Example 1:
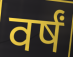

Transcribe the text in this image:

वर्षं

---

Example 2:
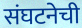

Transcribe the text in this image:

संघटनेची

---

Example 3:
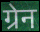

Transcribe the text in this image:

ग्रेन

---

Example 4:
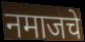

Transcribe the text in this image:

नमाजचे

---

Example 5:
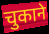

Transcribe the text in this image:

चुकाने